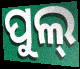
ପୁଲ୍